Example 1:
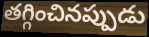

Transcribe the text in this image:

తగ్గించినప్పుడు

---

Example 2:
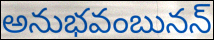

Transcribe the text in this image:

అనుభవంబునన్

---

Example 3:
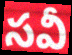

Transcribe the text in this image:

సవీ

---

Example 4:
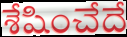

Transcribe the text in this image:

శేషించేదే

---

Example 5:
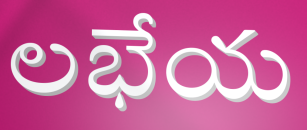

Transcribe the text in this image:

లభేయ